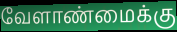
வேளாண்மைக்கு